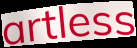
artless